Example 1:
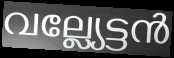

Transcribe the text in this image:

വല്ല്യേട്ടൻ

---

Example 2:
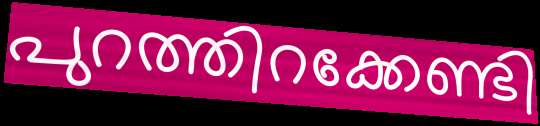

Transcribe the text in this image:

പുറത്തിറക്കേണ്ടി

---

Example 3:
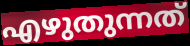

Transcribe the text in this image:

എഴുതുന്നത്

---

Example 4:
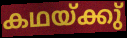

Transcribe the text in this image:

കഥയ്ക്കു്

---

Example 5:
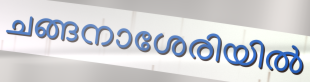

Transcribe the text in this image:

ചങ്ങനാശേരിയിൽ